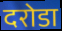
दरोडा